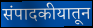
संपादकीयातून